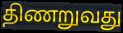
திணறுவது